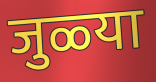
जुळ्या